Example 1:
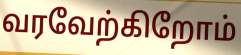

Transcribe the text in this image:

வரவேற்கிறோம்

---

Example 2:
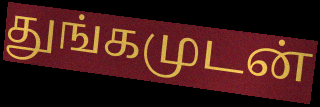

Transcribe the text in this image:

துங்கமுடன்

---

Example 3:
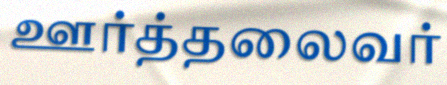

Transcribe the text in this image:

ஊர்த்தலைவர்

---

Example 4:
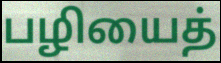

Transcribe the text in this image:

பழியைத்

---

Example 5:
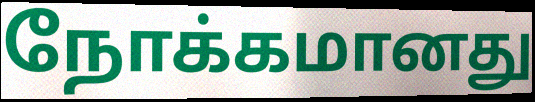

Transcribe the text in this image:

நோக்கமானது